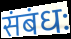
संबंधः